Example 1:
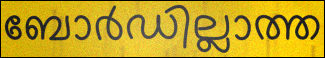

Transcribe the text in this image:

ബോർഡില്ലാത്ത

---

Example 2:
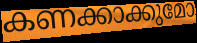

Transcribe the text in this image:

കണക്കാക്കുമോ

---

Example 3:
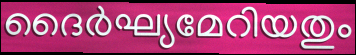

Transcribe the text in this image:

ദൈർഘ്യമേറിയതും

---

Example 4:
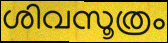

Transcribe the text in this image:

ശിവസൂത്രം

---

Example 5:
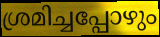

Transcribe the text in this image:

ശ്രമിച്ചപ്പോഴും